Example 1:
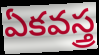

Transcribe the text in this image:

ఏకవస్త్ర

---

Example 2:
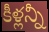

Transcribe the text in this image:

కీళ్లన్నీ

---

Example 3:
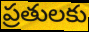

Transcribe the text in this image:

ప్రతులకు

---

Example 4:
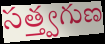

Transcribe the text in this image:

సత్త్వగుణ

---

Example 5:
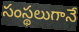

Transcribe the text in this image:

సంస్థలుగానే